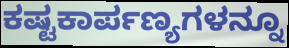
ಕಷ್ಟಕಾರ್ಪಣ್ಯಗಳನ್ನೂ